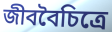
জীববৈচিত্রে